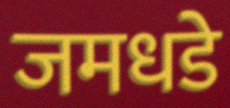
जमधडे